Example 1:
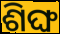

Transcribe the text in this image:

ଶିଙ୍ଘ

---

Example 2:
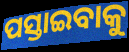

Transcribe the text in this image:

ପସ୍ତାଇବାକୁ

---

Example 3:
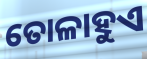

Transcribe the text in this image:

ତୋଳାହୁଏ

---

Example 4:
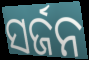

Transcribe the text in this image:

ସର୍ଜନ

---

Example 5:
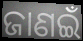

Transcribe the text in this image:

ଜାଣଇଁ